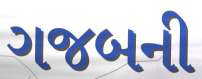
ગજબની